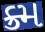
ક્ર્મ